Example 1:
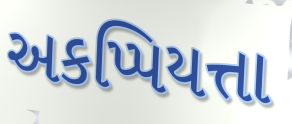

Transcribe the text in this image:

અકપ્પિયત્તા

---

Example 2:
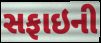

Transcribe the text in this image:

સફાઇની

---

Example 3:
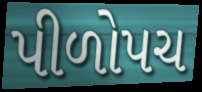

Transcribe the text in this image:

પીળોપચ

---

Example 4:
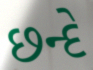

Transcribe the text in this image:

છન્દે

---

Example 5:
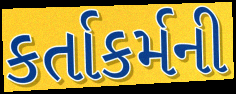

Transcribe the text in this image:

કર્તાકર્મની